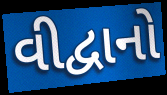
વીદ્વાનો